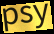
psy